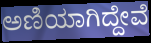
ಅಣಿಯಾಗಿದ್ದೇವೆ